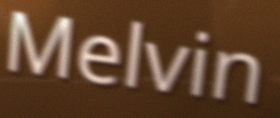
Melvin